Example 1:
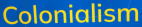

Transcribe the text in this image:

Colonialism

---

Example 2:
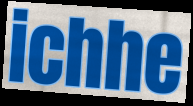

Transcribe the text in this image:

ichhe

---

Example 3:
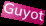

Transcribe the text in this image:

Guyot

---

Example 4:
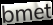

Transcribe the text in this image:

bmet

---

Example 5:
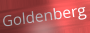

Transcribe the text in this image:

Goldenberg